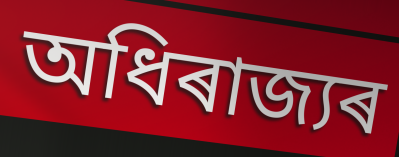
অধিৰাজ্যৰ